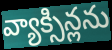
వ్యాక్సిన్లను